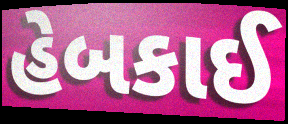
હેબકાઈ